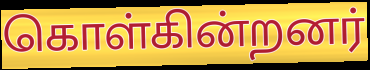
கொள்கின்றனர்